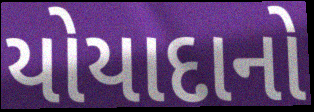
યોયાદાનો